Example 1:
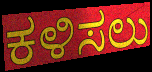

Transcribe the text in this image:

ಕಳಿಸಲು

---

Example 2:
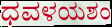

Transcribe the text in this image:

ಧವಳಯಶಂ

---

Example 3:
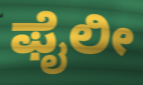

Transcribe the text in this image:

ಫೈಲೀ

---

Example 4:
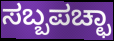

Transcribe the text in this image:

ಸಬ್ಬಪಚ್ಛಾ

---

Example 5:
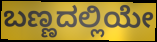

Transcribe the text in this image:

ಬಣ್ಣದಲ್ಲಿಯೇ